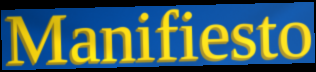
Manifiesto